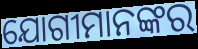
ଯୋଗୀମାନଙ୍କର